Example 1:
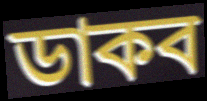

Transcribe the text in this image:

ডাকব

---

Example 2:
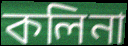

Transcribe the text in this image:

কলিনা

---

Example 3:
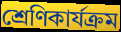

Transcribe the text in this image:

শ্রেণিকার্যক্রম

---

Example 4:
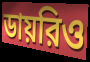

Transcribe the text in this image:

ডায়রিও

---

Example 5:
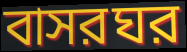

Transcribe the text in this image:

বাসরঘর